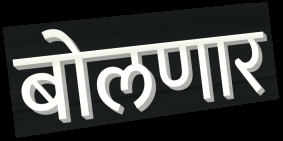
बोलणार